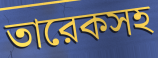
তারেকসহ